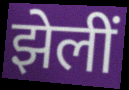
झेलीं